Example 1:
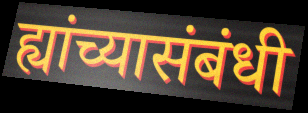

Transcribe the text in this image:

ह्यांच्यासंबंधी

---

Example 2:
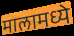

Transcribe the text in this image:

मालामध्ये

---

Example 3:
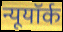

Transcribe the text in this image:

न्यूयॉर्क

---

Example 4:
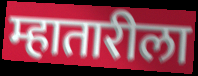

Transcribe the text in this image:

म्हातारीला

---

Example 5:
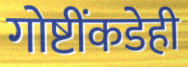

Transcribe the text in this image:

गोष्टींकडेही